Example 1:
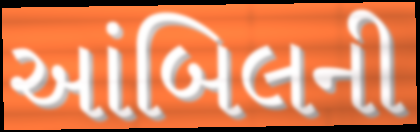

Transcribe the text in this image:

આંબિલની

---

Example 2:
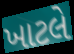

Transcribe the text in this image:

ખાટલે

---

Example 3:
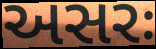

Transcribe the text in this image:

અસરઃ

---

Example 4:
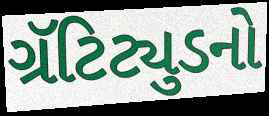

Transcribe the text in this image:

ગ્રૅટિટ્યુડનો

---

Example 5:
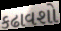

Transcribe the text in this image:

કઢાવશો